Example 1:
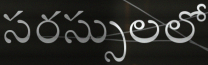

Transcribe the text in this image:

సరస్సులలో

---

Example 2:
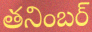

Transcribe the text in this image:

తనింబర్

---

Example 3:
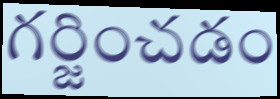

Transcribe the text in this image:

గర్జించడం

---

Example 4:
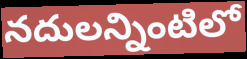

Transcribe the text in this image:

నదులన్నింటిలో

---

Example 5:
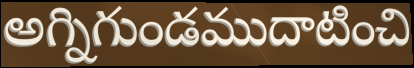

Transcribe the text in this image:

అగ్నిగుండముదాటించి